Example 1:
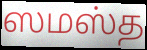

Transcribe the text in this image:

ஸமஸ்த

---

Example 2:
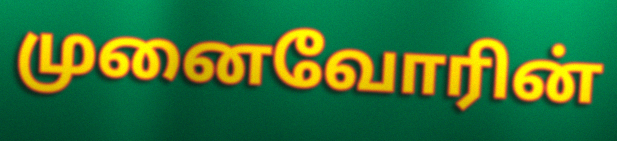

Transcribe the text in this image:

முனைவோரின்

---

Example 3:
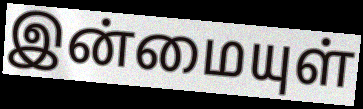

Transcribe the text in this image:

இன்மையுள்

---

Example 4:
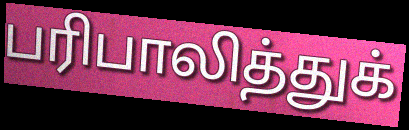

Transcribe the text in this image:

பரிபாலித்துக்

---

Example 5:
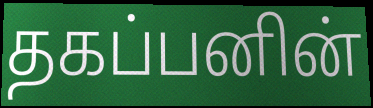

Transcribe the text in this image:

தகப்பனின்